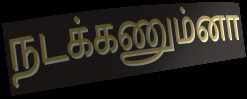
நடக்கணும்னா